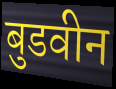
बुडवीन